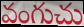
వంగుచు